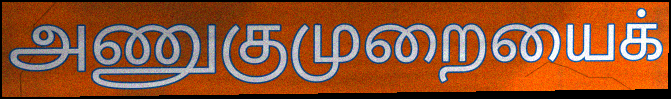
அணுகுமுறையைக்